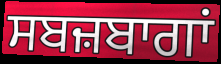
ਸਬਜ਼ਬਾਗਾਂ